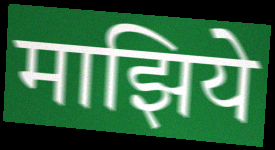
माझिये